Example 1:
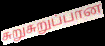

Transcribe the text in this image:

சுறுசுறுப்பான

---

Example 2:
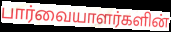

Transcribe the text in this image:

பார்வையாளர்களின்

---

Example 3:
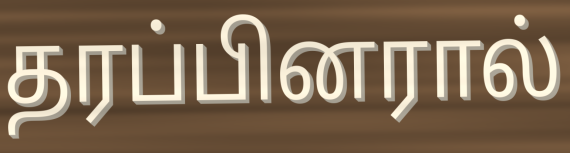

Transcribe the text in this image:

தரப்பினரால்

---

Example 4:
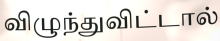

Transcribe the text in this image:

விழுந்துவிட்டால்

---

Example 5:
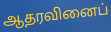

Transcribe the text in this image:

ஆதரவினைப்